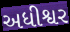
અધીશ્વર